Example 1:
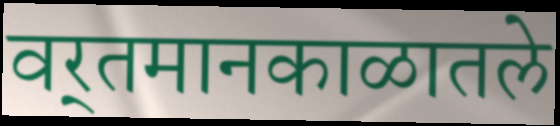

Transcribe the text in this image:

वर्तमानकाळातले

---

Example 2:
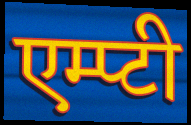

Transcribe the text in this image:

एम्प्टी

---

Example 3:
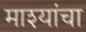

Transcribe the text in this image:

माश्यांचा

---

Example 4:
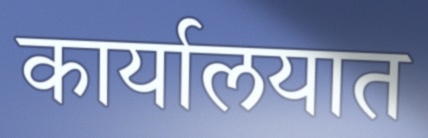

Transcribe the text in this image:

कार्यालयात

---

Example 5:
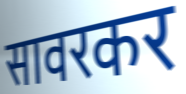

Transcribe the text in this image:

सावरकर